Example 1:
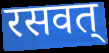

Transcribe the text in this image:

रसवत्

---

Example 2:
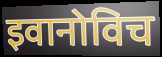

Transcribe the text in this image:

इवानोविच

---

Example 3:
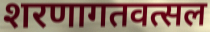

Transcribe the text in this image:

शरणागतवत्सल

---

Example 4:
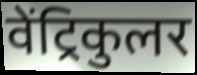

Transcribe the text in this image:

वेंट्रिकुलर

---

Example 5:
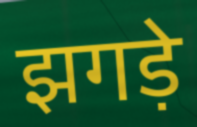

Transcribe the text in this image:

झगड़े